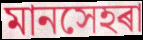
মানসেহৰা